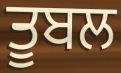
ਤੂਬਲ